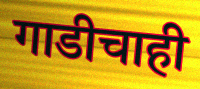
गाडीचाही